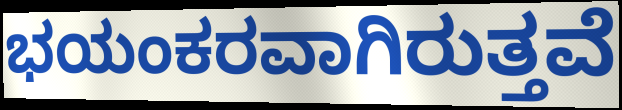
ಭಯಂಕರವಾಗಿರುತ್ತವೆ